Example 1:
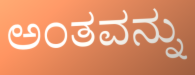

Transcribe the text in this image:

ಅಂತವನ್ನು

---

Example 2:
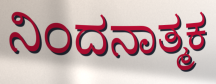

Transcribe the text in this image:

ನಿಂದನಾತ್ಮಕ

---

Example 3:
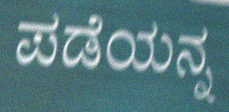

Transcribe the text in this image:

ಪಡೆಯನ್ನ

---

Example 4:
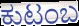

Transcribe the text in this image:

ಕುಟಂಬ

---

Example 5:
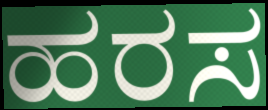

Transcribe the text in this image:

ಹರಸ